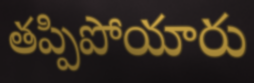
తప్పిపోయారు